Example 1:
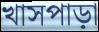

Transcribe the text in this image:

খাসপাড়া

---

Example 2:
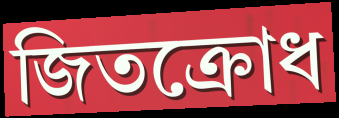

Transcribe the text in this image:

জিতক্রোধ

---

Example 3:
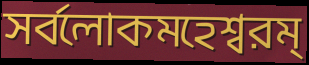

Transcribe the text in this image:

সর্বলোকমহেশ্বরম্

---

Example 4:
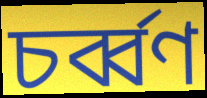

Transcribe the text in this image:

চর্ব্বণ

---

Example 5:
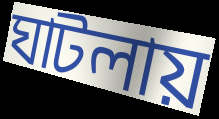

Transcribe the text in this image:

ঘাটলায়